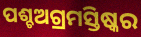
ପଶ୍ଚଅଗ୍ରମସ୍ତିଷ୍କର